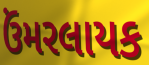
ઉંમરલાયક